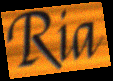
Ria